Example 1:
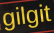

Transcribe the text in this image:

gilgit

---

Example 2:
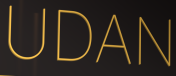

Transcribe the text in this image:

UDAN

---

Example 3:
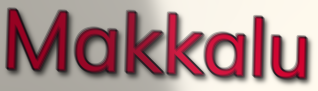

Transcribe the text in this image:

Makkalu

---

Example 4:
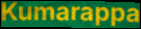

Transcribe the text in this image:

Kumarappa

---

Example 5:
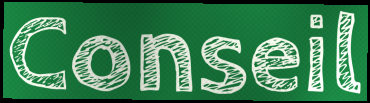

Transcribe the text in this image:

Conseil